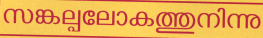
സങ്കല്പലോകത്തുനിന്നു